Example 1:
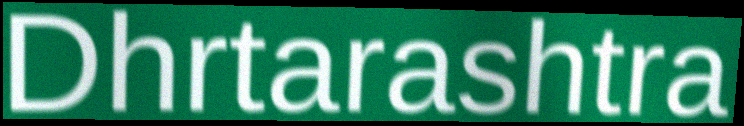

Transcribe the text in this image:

Dhrtarashtra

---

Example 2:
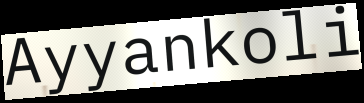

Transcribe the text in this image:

Ayyankoli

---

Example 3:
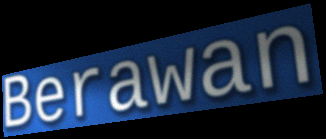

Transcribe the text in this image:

Berawan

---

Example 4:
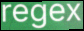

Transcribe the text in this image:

regex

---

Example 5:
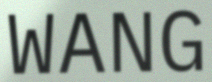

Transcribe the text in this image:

WANG